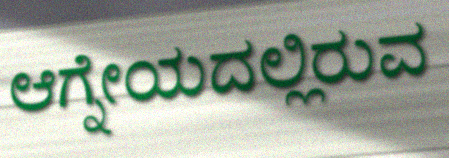
ಆಗ್ನೇಯದಲ್ಲಿರುವ